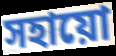
সহায়ো